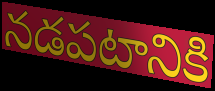
నడపటానికి